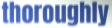
thoroughly